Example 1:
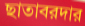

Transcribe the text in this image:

ছাতাবরদার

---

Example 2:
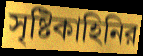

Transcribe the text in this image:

সৃষ্টিকাহিনির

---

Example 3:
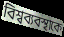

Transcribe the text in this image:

বিশ্বব্যবস্থাকে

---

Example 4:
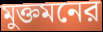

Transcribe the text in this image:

মুক্তমনের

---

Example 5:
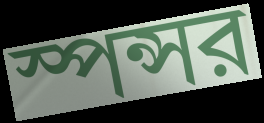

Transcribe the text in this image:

স্পন্সর